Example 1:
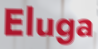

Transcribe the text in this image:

Eluga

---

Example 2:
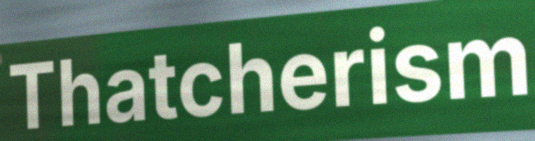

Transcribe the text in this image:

Thatcherism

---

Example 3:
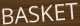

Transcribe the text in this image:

BASKET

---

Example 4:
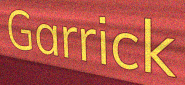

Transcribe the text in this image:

Garrick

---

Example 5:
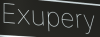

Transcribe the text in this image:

Exupery